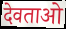
देवताओ